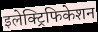
इलेक्ट्रिफिकेशन